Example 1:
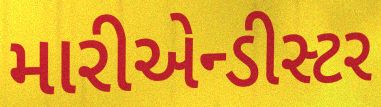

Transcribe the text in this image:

મારીએન્ડીસ્ટર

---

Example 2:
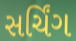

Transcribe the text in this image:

સર્ચિંગ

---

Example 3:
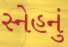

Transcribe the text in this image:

સ્નેહનું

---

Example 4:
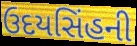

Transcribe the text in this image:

ઉદયસિંહની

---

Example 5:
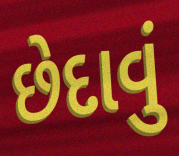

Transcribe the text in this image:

છેદાવું